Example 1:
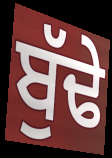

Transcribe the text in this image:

ਬੁੱਢੇ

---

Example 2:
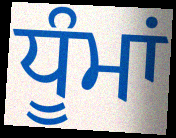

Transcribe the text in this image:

ਧੂੰਮਾਂ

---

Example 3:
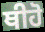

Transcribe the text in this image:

ਥੀਹੋ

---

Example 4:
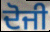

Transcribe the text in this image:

ਦੋਜੀ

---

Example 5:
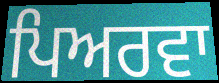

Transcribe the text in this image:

ਪਿਅਰਵਾ